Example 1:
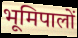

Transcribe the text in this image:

भूमिपालों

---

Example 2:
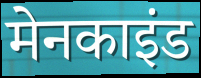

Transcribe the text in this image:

मेनकाइंड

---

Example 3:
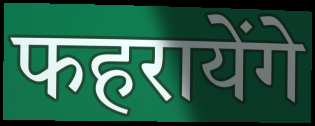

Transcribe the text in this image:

फहरायेंगे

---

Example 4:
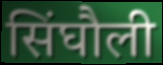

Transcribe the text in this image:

सिंघौली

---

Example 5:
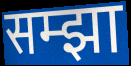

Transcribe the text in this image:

सम्झा